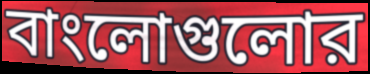
বাংলোগুলোর